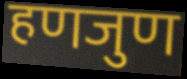
हणजुण